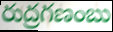
రుద్రగణంబు